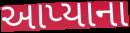
આપ્યાના